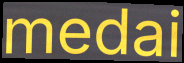
medai